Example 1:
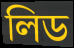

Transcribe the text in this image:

লিড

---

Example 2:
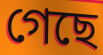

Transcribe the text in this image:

গেছে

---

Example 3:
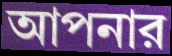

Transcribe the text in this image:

আপনার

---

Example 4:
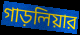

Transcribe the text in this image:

গাড়লিয়ার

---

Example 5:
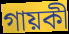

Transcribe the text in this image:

গায়কী